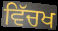
ਵਿੱਚਖ